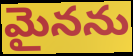
మైనను